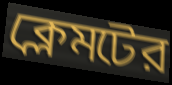
ক্লেমটের